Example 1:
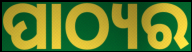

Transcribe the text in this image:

ପାଠ୍ୟର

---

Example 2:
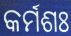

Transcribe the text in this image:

କର୍ମଶଃ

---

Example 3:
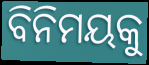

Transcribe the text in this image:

ବିନିମୟକୁ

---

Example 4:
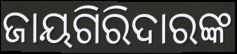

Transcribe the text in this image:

ଜାୟଗିରିଦାରଙ୍କ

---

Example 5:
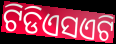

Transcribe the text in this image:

ଟିଡିଏସଏଟି